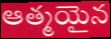
ఆత్మయైన